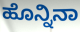
ಹೊನ್ನಿನಾ